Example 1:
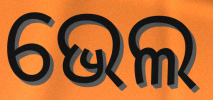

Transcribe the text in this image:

ଭେଲ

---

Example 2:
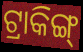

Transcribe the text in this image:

ଟ୍ରାକିଙ୍ଗ୍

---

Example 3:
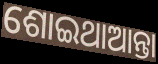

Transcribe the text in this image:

ଶୋଇଥାଆନ୍ତା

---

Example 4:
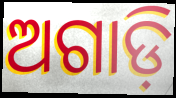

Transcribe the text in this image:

ଅଗାଡ଼ି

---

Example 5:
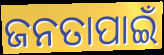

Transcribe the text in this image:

ଜନତାପାଇଁ